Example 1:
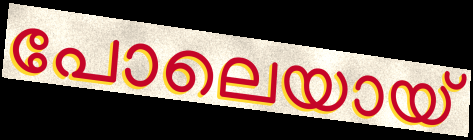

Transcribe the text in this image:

പോലെയായ്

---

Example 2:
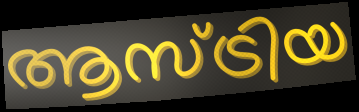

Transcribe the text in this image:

ആസ്ട്രിയ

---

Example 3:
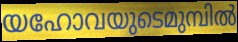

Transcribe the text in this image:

യഹോവയുടെമുമ്പിൽ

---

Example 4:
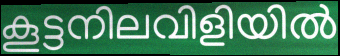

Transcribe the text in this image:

കൂട്ടനിലവിളിയിൽ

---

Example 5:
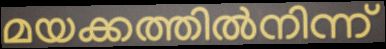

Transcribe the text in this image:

മയക്കത്തിൽനിന്ന്